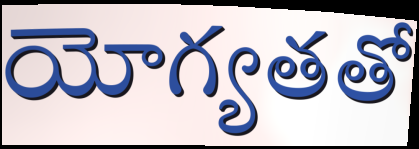
యోగ్యతతో